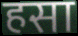
हसा